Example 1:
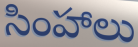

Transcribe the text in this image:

సింహాలు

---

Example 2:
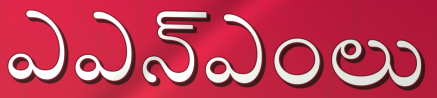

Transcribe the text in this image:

ఎఎన్ఎంలు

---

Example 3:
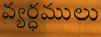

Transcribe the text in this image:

వ్యర్ధములు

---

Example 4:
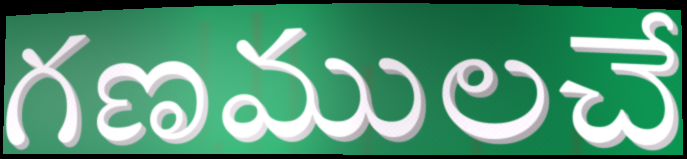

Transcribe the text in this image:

గణములచే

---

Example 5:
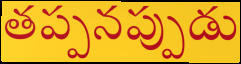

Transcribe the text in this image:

తప్పనప్పుడు